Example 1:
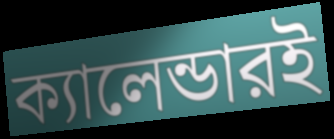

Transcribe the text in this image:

ক্যালেন্ডারই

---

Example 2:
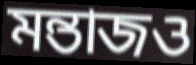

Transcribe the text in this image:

মন্তাজও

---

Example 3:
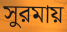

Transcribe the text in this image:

সুরমায়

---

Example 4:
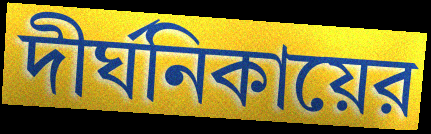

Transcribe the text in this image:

দীর্ঘনিকায়ের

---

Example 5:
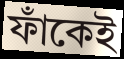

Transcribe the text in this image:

ফাঁকেই